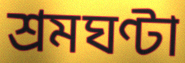
শ্রমঘণ্টা